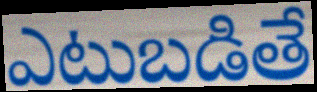
ఎటుబడితే